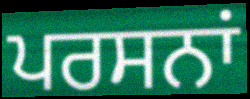
ਪਰਸਨਾਂ